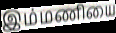
இம்மணியை